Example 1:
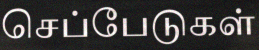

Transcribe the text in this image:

செப்பேடுகள்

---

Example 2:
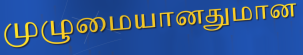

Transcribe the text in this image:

முழுமையானதுமான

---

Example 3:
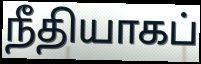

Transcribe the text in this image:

நீதியாகப்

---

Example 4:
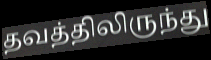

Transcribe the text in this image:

தவத்திலிருந்து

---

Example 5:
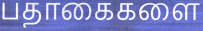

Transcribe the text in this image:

பதாகைகளை